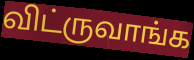
விட்ருவாங்க